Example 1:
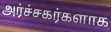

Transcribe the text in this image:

அர்ச்சகர்களாக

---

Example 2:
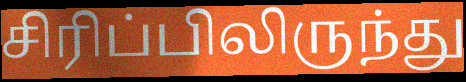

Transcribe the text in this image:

சிரிப்பிலிருந்து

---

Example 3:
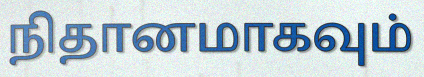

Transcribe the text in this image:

நிதானமாகவும்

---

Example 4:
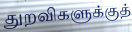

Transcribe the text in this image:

துறவிகளுக்குத்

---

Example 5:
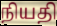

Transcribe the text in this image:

நியதி